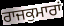
ਰਾਜਕੁਮਾਰਾਂ